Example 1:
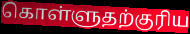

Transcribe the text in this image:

கொள்ளுதற்குரிய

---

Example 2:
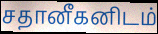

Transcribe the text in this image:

சதானீகனிடம்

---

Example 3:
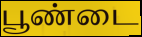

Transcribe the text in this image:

பூண்டை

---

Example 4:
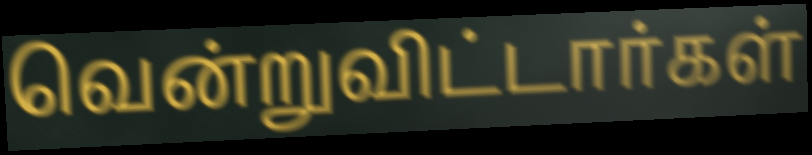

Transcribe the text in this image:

வென்றுவிட்டார்கள்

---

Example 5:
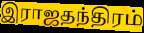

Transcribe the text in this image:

இராஜதந்திரம்